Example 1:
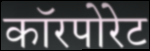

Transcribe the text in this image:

कॉरपोरेट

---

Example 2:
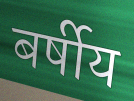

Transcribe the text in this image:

बर्षीय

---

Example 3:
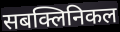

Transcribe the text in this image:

सबक्लिनिकल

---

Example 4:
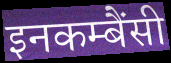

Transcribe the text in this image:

इनकम्बैंसी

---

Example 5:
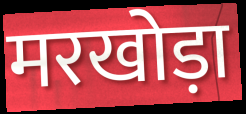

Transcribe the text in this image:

मरखोड़ा